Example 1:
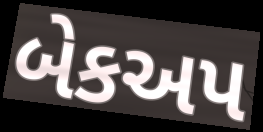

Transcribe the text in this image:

બેકઅપ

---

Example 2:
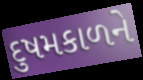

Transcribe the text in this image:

દુષમકાળને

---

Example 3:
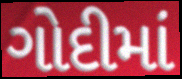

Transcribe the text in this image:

ગોદીમાં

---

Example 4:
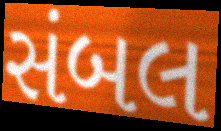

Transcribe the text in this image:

સંબલ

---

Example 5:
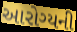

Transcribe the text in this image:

આરોગ્યની